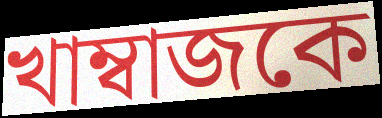
খাম্বাজকে